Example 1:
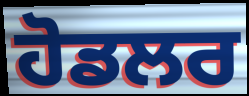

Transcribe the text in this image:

ਹੋਡਲਰ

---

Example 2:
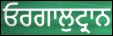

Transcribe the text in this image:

ਓਰਗਾਲੁਟ੍ਰਾਨ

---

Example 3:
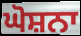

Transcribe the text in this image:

ਘੋਸ਼ਨਾ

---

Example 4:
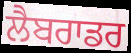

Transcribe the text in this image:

ਲੈਬਰਾਡਰ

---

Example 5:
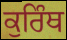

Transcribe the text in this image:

ਕੁਰਿੰਥ